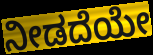
ನೀಡದೆಯೇ